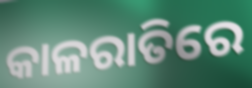
କାଳରାତିରେ